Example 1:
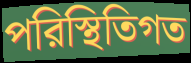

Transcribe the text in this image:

পরিস্থিতিগত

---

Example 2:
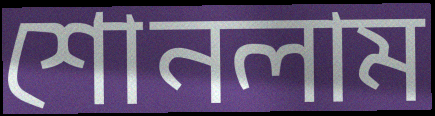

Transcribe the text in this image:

শোনলাম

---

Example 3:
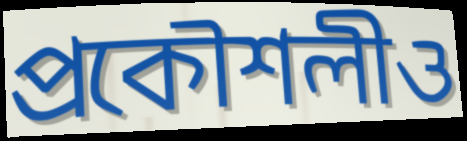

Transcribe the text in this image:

প্রকৌশলীও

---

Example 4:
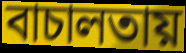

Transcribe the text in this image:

বাচালতায়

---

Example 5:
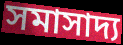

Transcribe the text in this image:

সমাসাদ্য